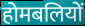
होमबलियों